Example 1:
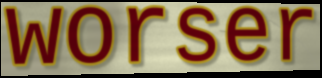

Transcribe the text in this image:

worser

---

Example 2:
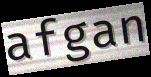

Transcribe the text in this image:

afgan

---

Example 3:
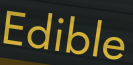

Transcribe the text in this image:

Edible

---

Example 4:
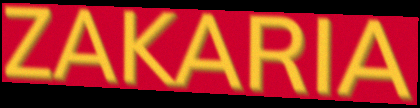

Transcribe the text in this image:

ZAKARIA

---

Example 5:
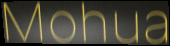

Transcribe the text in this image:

Mohua